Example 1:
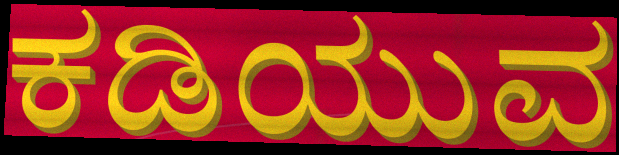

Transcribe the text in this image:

ಕಡಿಯುವ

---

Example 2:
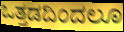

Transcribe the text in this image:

ಒತ್ತಡದಿಂದಲೂ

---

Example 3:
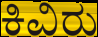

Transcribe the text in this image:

ಕಿವಿರು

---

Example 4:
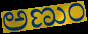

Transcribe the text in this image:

ಅಣುಂ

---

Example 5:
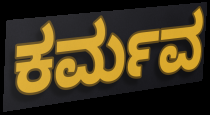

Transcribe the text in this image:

ಕರ್ಮವ